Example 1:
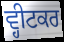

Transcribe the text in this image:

ਵ੍ਹੀਟਕਰ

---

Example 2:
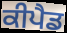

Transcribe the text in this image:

ਕੀਪੈਡ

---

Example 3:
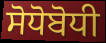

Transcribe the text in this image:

ਸੋਧੋਬੋਧੀ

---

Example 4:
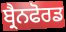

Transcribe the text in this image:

ਬ੍ਰੈਨਫੋਰਡ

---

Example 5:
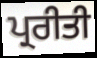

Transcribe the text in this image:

ਪ੍ਰਰੀਤੀ